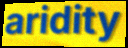
aridity